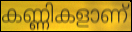
കണ്ണികളാണ്